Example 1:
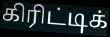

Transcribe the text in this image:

கிரிட்டிக்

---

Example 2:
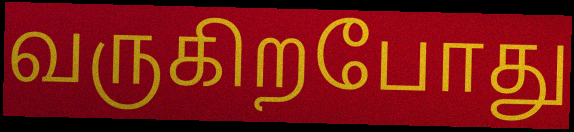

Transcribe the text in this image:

வருகிறபோது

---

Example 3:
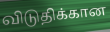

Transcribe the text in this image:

விடுதிக்கான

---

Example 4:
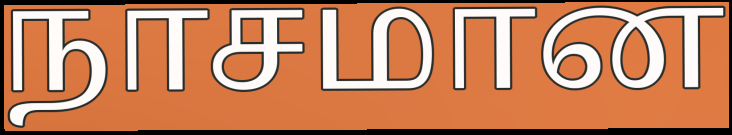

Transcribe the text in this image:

நாசமான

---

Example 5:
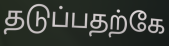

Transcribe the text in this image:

தடுப்பதற்கே